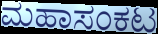
ಮಹಾಸಂಕಟ